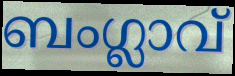
ബംഗ്ലാവ്